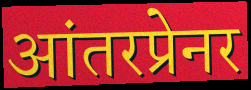
आंतरप्रेनर